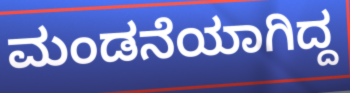
ಮಂಡನೆಯಾಗಿದ್ದ